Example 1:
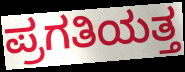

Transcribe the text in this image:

ಪ್ರಗತಿಯತ್ತ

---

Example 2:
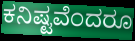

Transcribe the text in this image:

ಕನಿಷ್ಟವೆಂದರೂ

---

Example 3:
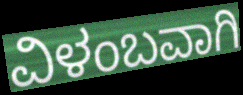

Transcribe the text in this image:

ವಿಳಂಬವಾಗಿ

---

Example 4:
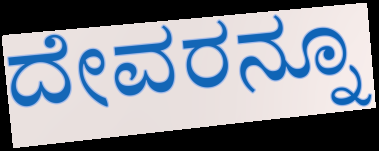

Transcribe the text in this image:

ದೇವರನ್ನೂ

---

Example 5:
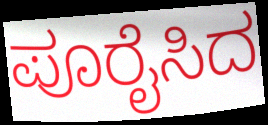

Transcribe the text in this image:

ಪೂರೈಸಿದ